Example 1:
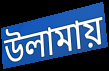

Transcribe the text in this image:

উলামায়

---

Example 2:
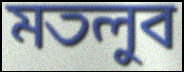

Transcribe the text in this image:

মতলুব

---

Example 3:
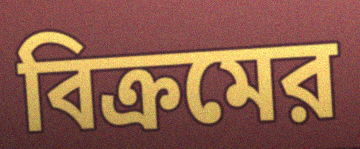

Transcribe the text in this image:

বিক্রমের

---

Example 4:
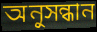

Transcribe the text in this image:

অনুসন্ধান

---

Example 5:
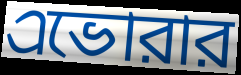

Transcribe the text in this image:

এভোরার